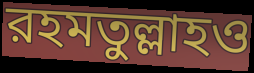
রহমতুল্লাহও